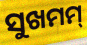
ସୁଖମମ୍